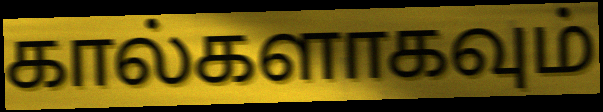
கால்களாகவும்